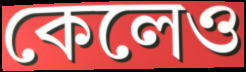
কেলেও